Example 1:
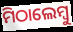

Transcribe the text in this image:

ମିଠାଲେମ୍ବୁ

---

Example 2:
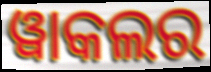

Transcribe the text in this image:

ୱାକଲର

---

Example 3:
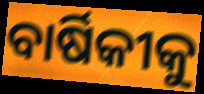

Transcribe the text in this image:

ବାର୍ଷିକୀକୁ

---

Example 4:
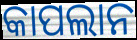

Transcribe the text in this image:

କାପଲାନ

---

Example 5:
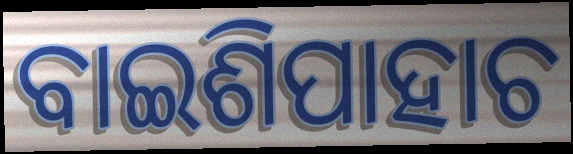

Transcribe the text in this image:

ବାଇଶିପାହାଚ